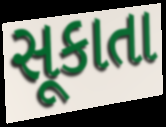
સૂકાતા